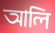
আলি